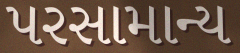
પરસામાન્ય